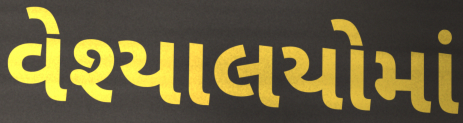
વેશ્યાલયોમાં